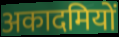
अकादमियों